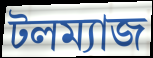
টলম্যাজ